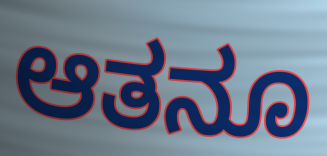
ಆತನೂ